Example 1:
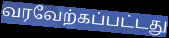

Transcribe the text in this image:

வரவேற்கப்பட்டது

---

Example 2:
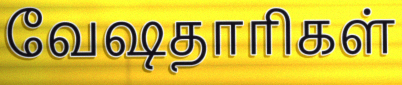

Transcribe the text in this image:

வேஷதாரிகள்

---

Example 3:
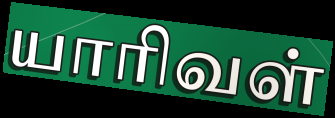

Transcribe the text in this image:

யாரிவள்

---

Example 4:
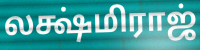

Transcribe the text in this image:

லக்ஷ்மிராஜ்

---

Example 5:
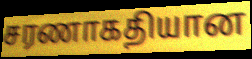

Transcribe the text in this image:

சரணாகதியான